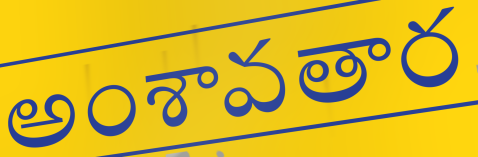
అంశావతార